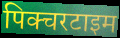
पिक्चरटाइम